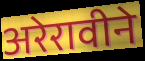
अरेरावीने